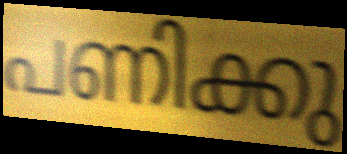
പണിക്കു